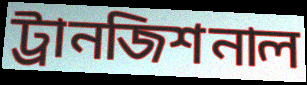
ট্রানজিশনাল